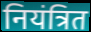
नियंत्रित